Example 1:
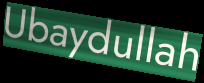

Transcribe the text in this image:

Ubaydullah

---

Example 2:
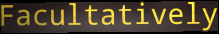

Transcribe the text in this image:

Facultatively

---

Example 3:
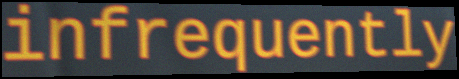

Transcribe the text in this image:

infrequently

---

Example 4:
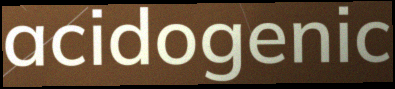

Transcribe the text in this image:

acidogenic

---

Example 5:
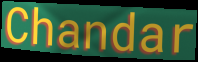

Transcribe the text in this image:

Chandar